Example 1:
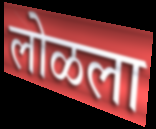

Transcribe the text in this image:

लोळला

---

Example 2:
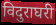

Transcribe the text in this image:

विदुराघरी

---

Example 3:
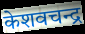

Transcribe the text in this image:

केशवचन्द्र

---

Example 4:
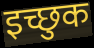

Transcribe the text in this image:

इच्छुक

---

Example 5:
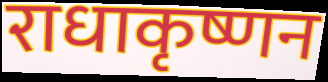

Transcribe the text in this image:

राधाकृष्णन